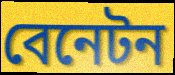
বেনেটন